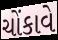
ચોંકાવે